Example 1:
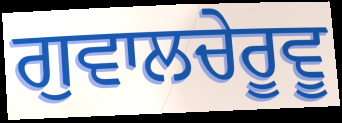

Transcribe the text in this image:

ਗੁਵਾਲਚੇਰੂਵੂ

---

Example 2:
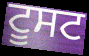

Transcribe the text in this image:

ਟੂਸਟ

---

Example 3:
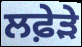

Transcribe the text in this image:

ਲਫ਼ੇੜੇ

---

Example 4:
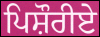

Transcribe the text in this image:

ਪਿਸ਼ੌਰੀਏ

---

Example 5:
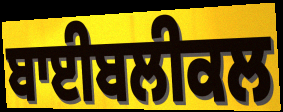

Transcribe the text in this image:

ਬਾਈਬਲੀਕਲ